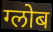
ग्लोब